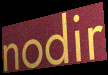
nodir